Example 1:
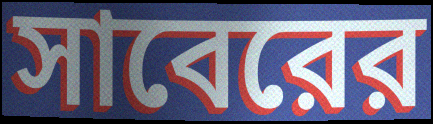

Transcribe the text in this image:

সাবেরের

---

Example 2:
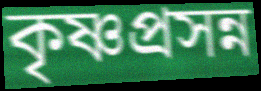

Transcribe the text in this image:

কৃষ্ণপ্রসন্ন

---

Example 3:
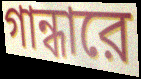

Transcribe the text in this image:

গান্ধারে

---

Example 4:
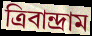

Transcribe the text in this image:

ত্রিবান্দ্রাম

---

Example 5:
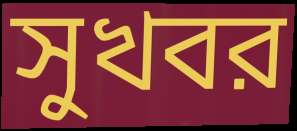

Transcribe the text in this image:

সুখবর